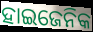
ହାଇଜେନିକ